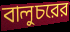
বালুচরের